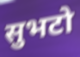
सुभटो